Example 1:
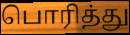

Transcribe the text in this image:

பொரித்து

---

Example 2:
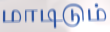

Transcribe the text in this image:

மாடிடும்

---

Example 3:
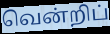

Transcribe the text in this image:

வென்றிப்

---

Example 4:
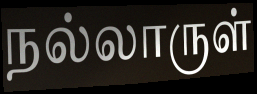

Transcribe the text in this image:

நல்லாருள்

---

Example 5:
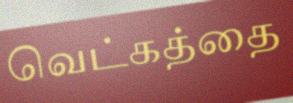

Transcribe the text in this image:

வெட்கத்தை